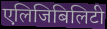
एलिजिबिलिटी